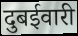
दुबईवारी